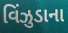
વિંઝુડાના